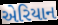
એરિયાન